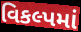
વિકલ્પમાં